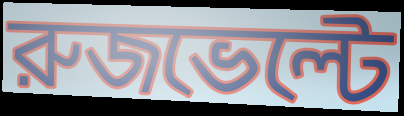
ৰুজভেল্টে